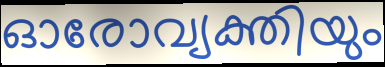
ഓരോവ്യക്തിയും